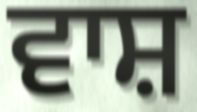
ਵਾਸ਼